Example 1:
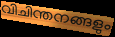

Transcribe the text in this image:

വിചിന്തനങ്ങളും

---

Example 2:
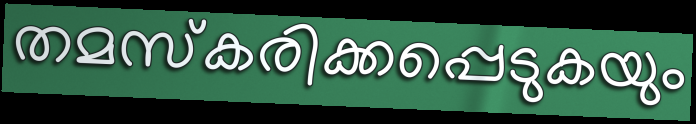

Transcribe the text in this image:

തമസ്കരിക്കപ്പെടുകയും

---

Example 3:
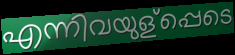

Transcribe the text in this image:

എന്നിവയുള്പ്പെടെ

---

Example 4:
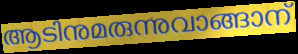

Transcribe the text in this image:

ആടിനുമരുന്നുവാങ്ങാന്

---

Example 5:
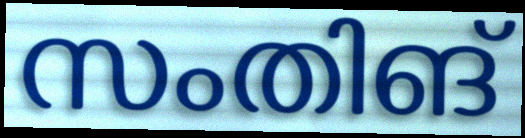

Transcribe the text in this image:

സംതിങ്